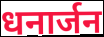
धनार्जन